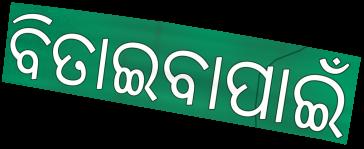
ବିତାଇବାପାଇଁ